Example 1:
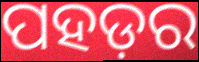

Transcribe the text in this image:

ପହଡ଼ର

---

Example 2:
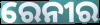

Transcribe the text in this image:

ରେନୀର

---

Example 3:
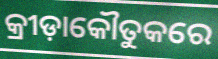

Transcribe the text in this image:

କ୍ରୀଡ଼ାକୌତୁକରେ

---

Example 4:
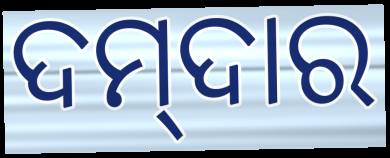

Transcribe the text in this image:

ଦମ୍‌ଦାର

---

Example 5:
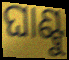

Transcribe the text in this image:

ଘାଣ୍ଟୁ